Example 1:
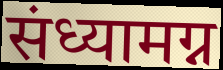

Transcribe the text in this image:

संध्यामग्न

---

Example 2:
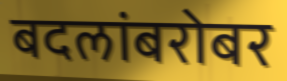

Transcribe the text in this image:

बदलांबरोबर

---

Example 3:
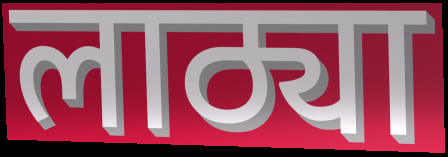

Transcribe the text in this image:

लाठ्या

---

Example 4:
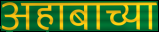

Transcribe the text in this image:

अहाबाच्या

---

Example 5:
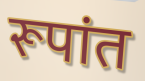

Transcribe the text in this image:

रूपांत